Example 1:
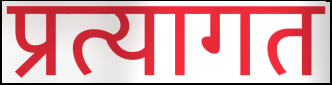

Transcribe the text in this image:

प्रत्यागत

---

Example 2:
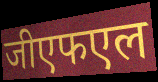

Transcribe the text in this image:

जीएफएल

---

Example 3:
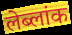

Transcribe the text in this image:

लेब्लांक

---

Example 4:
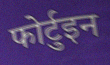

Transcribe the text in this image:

फोर्टुइन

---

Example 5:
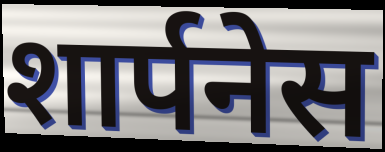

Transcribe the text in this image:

शार्पनेस